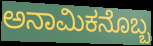
ಅನಾಮಿಕನೊಬ್ಬ